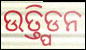
ଉତ୍ତ୍ପିଡନ